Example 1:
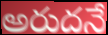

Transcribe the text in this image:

అరుదనే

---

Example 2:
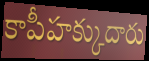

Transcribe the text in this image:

కాపీహక్కుదారు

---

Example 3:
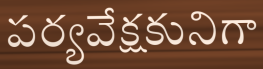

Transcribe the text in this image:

పర్యవేక్షకునిగా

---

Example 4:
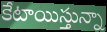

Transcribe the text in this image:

కేటాయిస్తున్నా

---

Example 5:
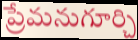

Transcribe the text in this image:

ప్రేమనుగూర్చి